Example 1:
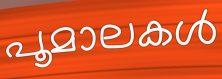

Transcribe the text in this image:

പൂമാലകൾ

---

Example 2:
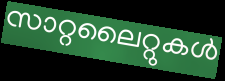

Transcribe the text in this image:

സാറ്റലൈറ്റുകൾ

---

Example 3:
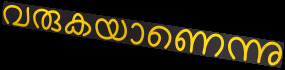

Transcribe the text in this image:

വരുകയാണെന്നു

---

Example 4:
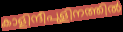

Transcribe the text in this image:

കാളിന്ദീപുളിനത്തിൽ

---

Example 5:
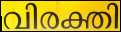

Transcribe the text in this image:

വിരക്തി